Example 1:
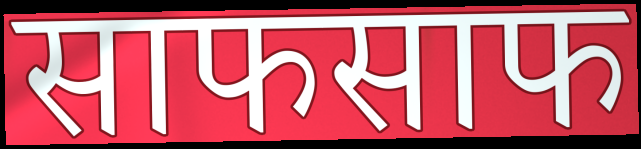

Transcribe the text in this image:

साफसाफ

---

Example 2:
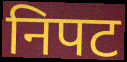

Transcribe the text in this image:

निपट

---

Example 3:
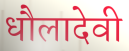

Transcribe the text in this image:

धौलादेवी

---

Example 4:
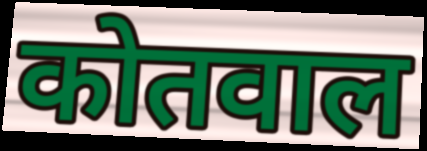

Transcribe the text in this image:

कोतवाल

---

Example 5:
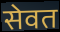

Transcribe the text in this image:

सेवत